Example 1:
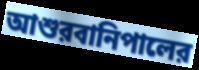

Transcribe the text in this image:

আশুরবানিপালের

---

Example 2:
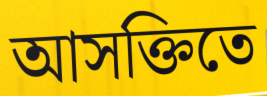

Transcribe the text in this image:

আসক্তিতে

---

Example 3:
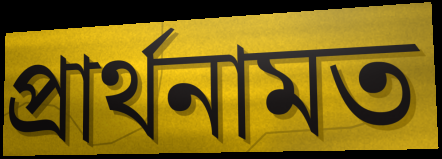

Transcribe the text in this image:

প্রার্থনামত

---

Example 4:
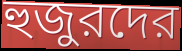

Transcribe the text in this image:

হুজুরদের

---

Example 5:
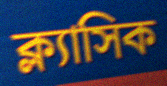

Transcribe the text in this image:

ক্ল্যাসিক